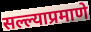
सल्ल्याप्रमाणे